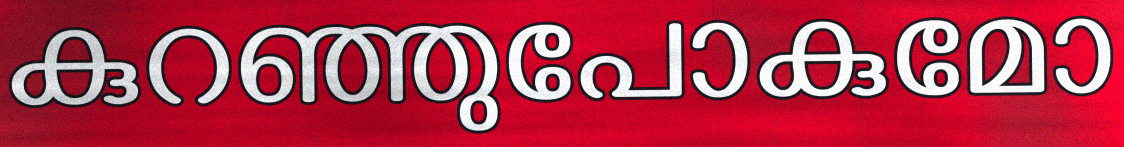
കുറഞ്ഞുപോകുമോ